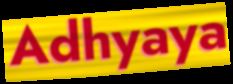
Adhyaya